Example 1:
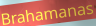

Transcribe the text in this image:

Brahamanas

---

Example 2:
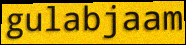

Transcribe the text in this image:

gulabjaam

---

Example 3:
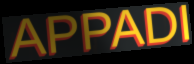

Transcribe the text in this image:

APPADI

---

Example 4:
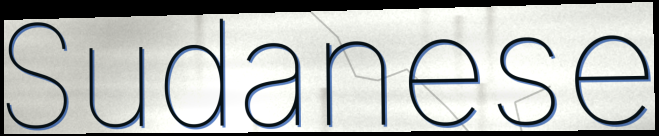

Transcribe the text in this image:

Sudanese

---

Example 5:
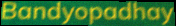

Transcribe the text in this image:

Bandyopadhay